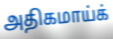
அதிகமாய்க்